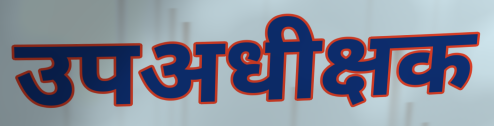
उपअधीक्षक